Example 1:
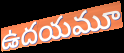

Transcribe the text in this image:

ఉదయమూ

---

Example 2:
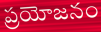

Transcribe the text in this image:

ప్రయోజనం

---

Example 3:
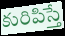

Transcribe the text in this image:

కురిపిస్తే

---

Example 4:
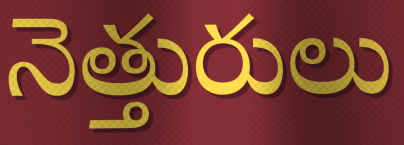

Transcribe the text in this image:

నెత్తురులు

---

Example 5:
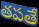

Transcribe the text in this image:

తపతే